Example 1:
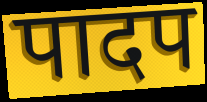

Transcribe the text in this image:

पादप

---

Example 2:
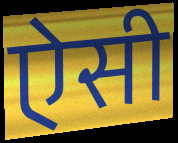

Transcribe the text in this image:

ऐसी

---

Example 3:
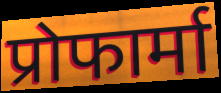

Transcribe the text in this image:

प्रोफार्मा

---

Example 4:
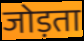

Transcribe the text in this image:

जोड़ता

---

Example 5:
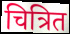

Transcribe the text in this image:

चित्रित